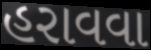
હરાવવા